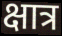
क्षात्र